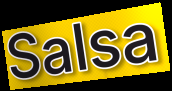
Salsa